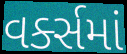
વર્ક્સમાં